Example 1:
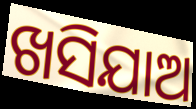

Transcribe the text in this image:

ଖସିଯାଅ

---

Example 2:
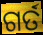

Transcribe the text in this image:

ଗର୍ତ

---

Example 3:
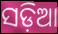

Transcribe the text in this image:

ସଡ଼ିଆ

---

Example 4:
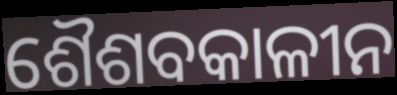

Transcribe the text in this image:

ଶୈଶବକାଳୀନ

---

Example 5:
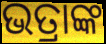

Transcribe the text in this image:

ଭତ୍ରାଙ୍କ